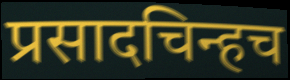
प्रसादचिन्हच